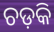
ଚଡ଼କି